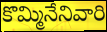
కొమ్మినేనివారి